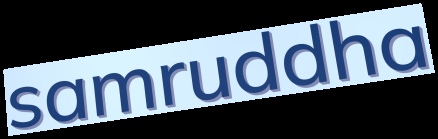
samruddha